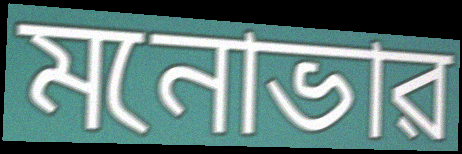
মনোভাৱ